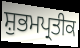
ਸ਼ੁਭਮਪ੍ਰਤੀਕ